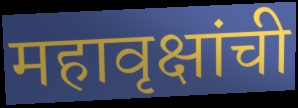
महावृक्षांची